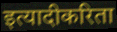
इत्यादीकरिता